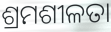
ଶ୍ରମଶୀଳତା